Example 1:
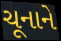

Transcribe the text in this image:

ચૂનાને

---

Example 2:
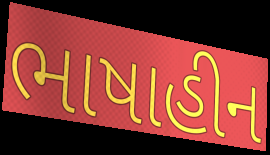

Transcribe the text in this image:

ભાષાહીન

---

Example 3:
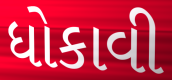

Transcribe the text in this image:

ધોકાવી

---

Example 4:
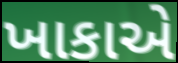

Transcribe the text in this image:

ખાકાએ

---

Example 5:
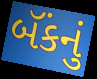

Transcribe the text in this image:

બૅંકનું